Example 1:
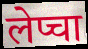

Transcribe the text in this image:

लेप्चा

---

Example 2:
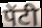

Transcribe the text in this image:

पेंटी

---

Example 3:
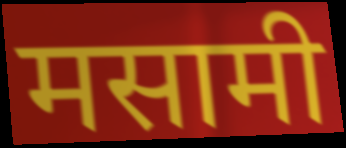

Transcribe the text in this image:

मसामी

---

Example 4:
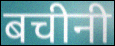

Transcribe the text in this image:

बचीनी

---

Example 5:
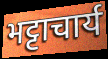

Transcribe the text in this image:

भट्टाचार्य